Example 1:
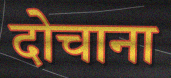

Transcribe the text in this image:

दोचाना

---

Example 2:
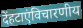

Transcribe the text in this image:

देंहटाएंविचारणीय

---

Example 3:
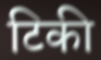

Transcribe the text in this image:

टिकी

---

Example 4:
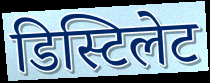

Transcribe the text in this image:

डिस्टिलेट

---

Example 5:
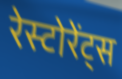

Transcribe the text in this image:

रेस्टोरेंट्स